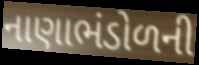
નાણાભંડોળની